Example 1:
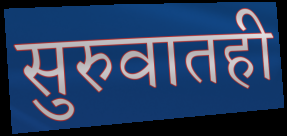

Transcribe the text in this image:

सुरुवातही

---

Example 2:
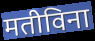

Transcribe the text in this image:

मतीविना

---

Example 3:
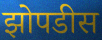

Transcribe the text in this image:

झोपडीस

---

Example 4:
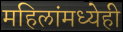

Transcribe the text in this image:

महिलांमध्येही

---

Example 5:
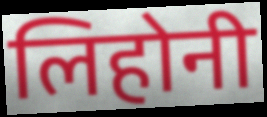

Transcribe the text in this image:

लिहोनी